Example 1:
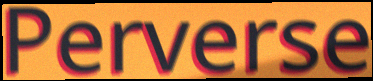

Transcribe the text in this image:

Perverse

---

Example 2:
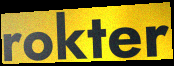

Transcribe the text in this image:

rokter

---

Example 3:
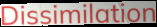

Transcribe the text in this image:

Dissimilation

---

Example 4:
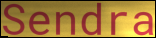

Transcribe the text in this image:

Sendra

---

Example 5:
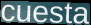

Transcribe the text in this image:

cuesta